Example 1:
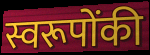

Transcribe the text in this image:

स्वरूपोंकी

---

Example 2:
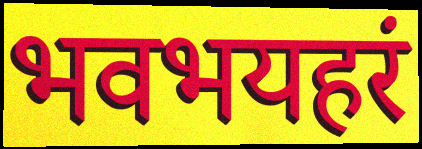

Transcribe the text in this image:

भवभयहरं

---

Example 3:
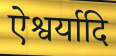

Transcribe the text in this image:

ऐश्वर्यादि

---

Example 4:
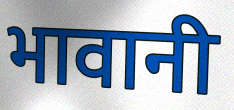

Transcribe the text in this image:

भावानी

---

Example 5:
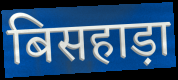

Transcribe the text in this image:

बिसहाड़ा